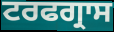
ਟਰਫਗ੍ਰਾਸ